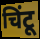
चिंटू